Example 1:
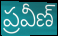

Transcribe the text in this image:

ప్రవీణ్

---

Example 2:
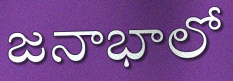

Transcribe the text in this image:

జనాభాలో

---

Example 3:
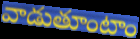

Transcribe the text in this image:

వాడుతూంటాం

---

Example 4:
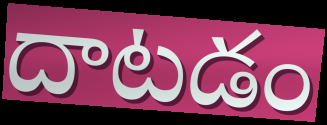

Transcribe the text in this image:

దాటడం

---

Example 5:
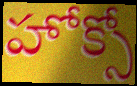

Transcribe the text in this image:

హోక్సో